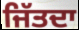
ਜਿੱਤਦਾ